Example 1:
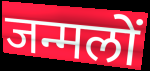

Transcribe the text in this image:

जन्मलों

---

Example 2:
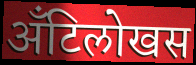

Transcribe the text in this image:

अँटिलोखस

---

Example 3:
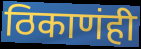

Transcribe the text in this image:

ठिकाणंही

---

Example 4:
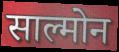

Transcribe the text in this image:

साल्मोन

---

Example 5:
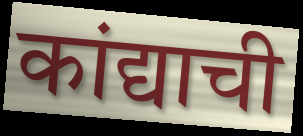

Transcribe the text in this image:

कांद्याची